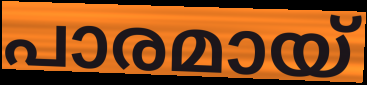
പാരമായ്